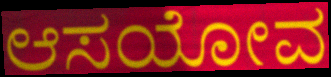
ಆಸಯೋವ